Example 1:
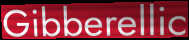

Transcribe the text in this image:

Gibberellic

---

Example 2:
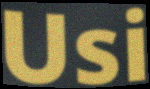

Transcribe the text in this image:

Usi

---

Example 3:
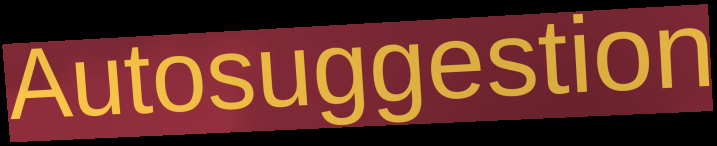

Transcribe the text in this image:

Autosuggestion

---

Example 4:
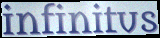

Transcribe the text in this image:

infinitus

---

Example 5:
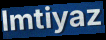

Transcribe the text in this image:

Imtiyaz